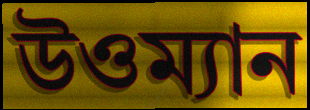
উওম্যান